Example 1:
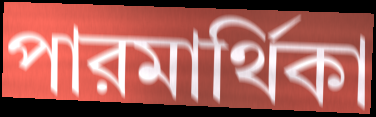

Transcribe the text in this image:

পারমার্থিকা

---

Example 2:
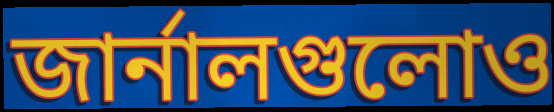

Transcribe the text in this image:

জার্নালগুলোও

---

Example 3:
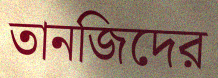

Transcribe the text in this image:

তানজিদের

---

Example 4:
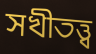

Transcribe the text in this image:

সখীতত্ত্ব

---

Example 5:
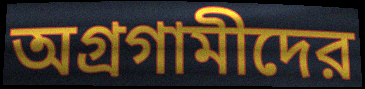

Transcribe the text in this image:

অগ্রগামীদের